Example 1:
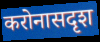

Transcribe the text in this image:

करोनासदृश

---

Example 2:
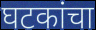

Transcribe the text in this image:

घटकांचा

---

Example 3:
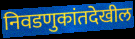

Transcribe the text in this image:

निवडणुकांतदेखील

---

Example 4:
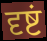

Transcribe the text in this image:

दृष्टं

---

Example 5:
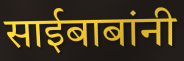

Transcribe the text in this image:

साईबाबांनी